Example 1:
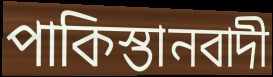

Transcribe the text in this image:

পাকিস্তানবাদী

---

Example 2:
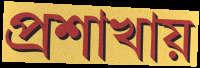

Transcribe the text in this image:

প্রশাখায়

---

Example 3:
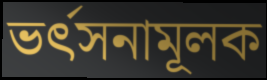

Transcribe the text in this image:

ভর্ৎসনামূলক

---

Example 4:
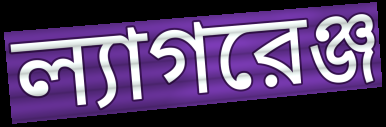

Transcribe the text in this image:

ল্যাগরেঞ্জ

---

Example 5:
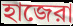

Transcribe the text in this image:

হাজেরা